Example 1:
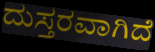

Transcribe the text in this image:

ದುಸ್ತರವಾಗಿದೆ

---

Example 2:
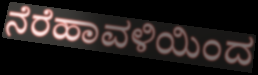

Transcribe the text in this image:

ನೆರೆಹಾವಳಿಯಿಂದ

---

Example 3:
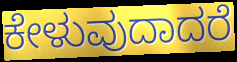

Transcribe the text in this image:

ಕೇಳುವುದಾದರೆ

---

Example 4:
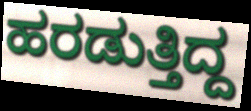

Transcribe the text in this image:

ಹರಡುತ್ತಿದ್ದ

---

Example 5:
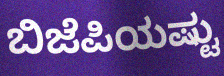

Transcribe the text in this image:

ಬಿಜೆಪಿಯಷ್ಟು